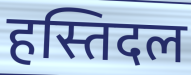
हस्तिदल